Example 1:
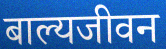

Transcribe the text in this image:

बाल्यजीवन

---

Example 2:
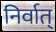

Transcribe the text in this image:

निर्वात्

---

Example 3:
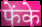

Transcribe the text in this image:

फेंके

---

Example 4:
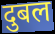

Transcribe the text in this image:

दुबल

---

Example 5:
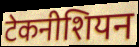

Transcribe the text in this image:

टेकनीशियन